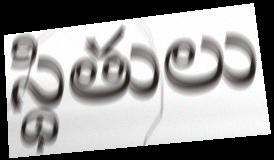
స్థితులు